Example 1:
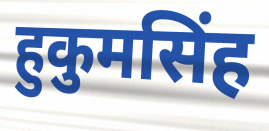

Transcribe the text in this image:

हुकुमसिंह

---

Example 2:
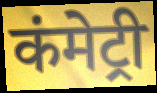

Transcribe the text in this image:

कंमेट्री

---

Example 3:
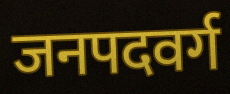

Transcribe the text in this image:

जनपदवर्ग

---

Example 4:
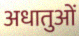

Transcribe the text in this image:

अधातुओं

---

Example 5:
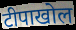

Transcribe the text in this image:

टीपाखोल